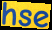
hse